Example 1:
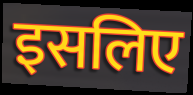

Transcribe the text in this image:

इसलिए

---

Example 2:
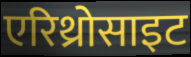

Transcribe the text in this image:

एरिथ्रोसाइट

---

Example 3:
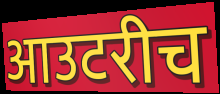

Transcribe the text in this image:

आउटरीच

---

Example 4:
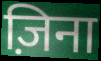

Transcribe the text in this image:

ज़िना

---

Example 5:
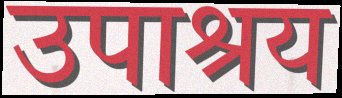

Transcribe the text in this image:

उपाश्रय